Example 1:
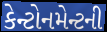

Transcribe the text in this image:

કેન્ટોનમેન્ટની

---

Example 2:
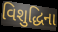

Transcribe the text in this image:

વિશુદ્ધિના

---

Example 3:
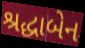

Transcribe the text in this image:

શ્રદ્ધાબેન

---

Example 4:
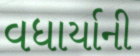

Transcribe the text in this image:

વધાર્યાની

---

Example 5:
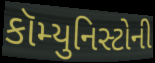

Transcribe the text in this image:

કૉમ્યુનિસ્ટોની